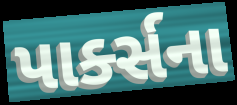
પાર્ક્સના